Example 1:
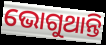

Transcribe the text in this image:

ଭୋଗୁଥାନ୍ତି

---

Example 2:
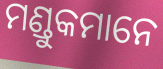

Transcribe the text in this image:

ମଣ୍ଡୁକମାନେ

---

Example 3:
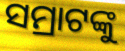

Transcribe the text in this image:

ସମ୍ରାଟଙ୍କୁ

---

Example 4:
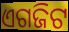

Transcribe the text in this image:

ଏଗଜିଟ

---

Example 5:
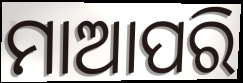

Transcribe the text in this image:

ମାଆପରି